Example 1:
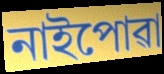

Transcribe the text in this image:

নাইপোৱা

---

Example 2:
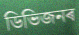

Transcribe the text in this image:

ডিভিজনৰ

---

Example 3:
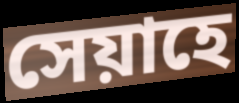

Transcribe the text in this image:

সেয়াহে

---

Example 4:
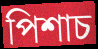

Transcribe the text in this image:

পিশাচ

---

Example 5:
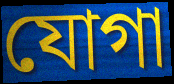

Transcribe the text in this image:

যোগা